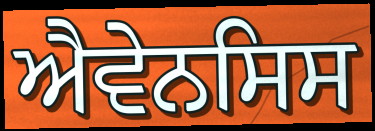
ਐਵੇਨਸਿਸ